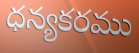
ధన్యకరము